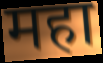
महा